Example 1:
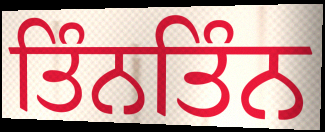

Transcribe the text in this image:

ਤਿੰਨਤਿੰਨ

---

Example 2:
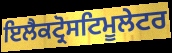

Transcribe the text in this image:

ਇਲੈਕਟ੍ਰੋਸਟਿਮੂਲੇਟਰ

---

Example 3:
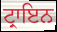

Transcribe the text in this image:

ਟ੍ਰਾਇਨ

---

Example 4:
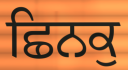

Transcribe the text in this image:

ਛਿਨਕੁ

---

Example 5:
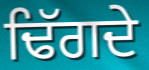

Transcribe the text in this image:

ਢਿੱਗਦੇ